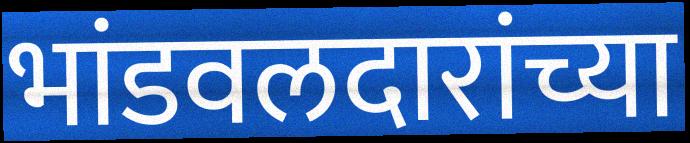
भांडवलदारांच्या